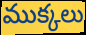
ముక్కలు